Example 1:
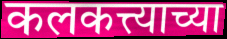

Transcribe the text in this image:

कलकत्त्याच्या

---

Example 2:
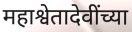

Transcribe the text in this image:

महाश्वेतादेवींच्या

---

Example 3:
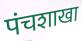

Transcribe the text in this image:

पंचशाखा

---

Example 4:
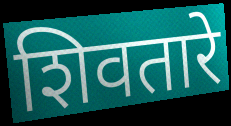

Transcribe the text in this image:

शिवतारे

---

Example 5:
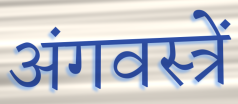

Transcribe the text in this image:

अंगवस्त्रें